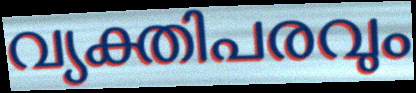
വ്യക്തിപരവും